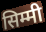
सिम्मी